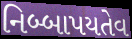
નિબ્બાપયતેવ